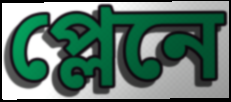
প্লেনে